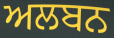
ਅਲਬਨ